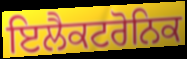
ਇਲੈਕਟਰੋਨਿਕ